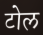
टोल